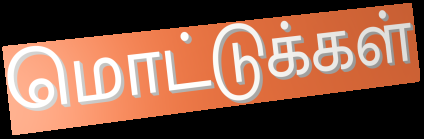
மொட்டுக்கள்